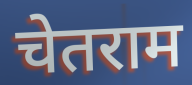
चेतराम